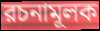
রচনামূলক